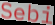
Sebi